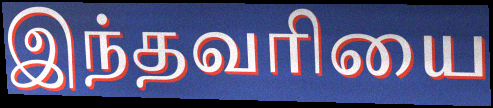
இந்தவரியை